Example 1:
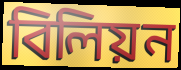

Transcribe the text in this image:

বিলিয়ন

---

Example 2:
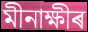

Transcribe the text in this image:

মীনাক্ষীৰ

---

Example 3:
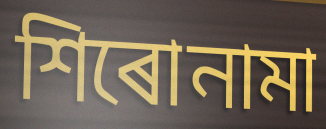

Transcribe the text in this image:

শিৰোনামা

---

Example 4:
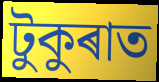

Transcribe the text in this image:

টুকুৰাত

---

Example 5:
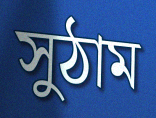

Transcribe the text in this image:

সুঠাম